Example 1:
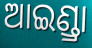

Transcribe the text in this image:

ଆଇଣ୍ଡ୍ରା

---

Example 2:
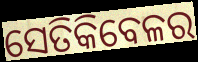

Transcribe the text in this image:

ସେତିକିବେଳର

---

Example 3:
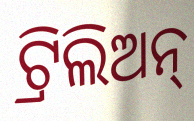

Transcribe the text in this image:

ଟ୍ରିଲିଅନ୍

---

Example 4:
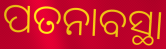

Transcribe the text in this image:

ପତନାବସ୍ଥା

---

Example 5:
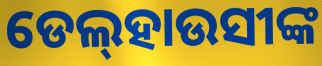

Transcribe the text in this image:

ଡେଲ୍‌ହାଉସୀଙ୍କ